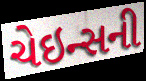
ચેઇન્સની